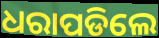
ଧରାପଡିଲେ